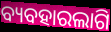
ବ୍ୟବହାରଲାଗି